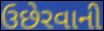
ઉછેરવાની